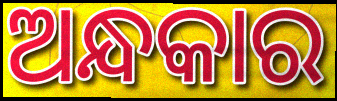
ଅନ୍ଧକାର